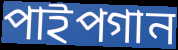
পাইপগান